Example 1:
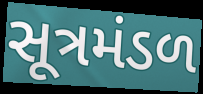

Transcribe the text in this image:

સૂત્રમંડળ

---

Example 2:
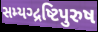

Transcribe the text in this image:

સમ્યગ્દ્રષ્ટિપુરુષ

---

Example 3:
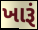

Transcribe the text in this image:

ખારૂં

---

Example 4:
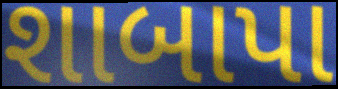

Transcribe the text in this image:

શાબાપા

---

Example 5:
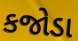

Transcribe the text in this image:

કજોડા